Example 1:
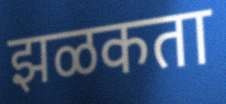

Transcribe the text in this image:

झळकता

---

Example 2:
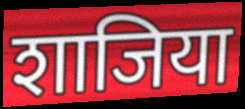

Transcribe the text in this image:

शाजिया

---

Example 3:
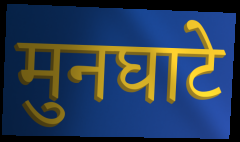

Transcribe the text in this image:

मुनघाटे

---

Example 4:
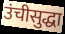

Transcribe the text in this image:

उंचीसुद्धा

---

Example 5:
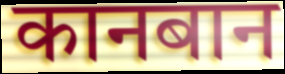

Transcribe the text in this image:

कानबान